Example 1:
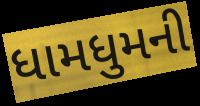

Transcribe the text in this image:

ધામધુમની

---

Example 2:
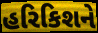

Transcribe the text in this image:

હરિકિશને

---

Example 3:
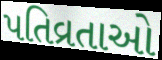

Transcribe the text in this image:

પતિવ્રતાઓ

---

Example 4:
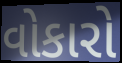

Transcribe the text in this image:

વોકારો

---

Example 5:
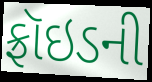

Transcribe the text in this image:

ફ્રૉઇડની